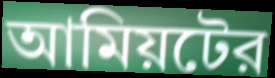
আমিয়টের